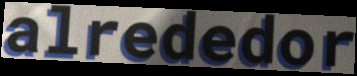
alrededor